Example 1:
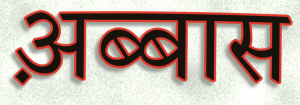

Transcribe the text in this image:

अ़ब्बास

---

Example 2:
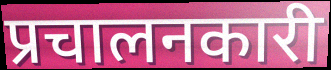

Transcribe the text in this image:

प्रचालनकारी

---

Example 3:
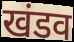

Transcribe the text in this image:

खंडव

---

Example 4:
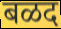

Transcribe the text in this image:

बळद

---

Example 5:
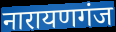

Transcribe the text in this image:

नारायणगंज